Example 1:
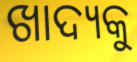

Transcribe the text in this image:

ଖାଦ୍ୟକୁ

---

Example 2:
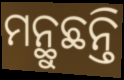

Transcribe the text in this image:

ମନ୍ଥୁଛନ୍ତି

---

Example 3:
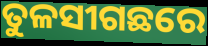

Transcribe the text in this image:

ତୁଳସୀଗଛରେ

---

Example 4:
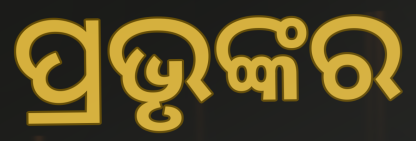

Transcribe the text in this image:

ପ୍ରଭୃଙ୍କର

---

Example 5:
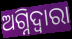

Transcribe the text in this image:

ଅଗ୍ନିଦ୍ଵାରା